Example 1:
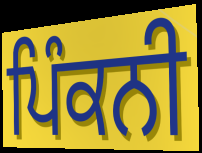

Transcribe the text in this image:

ਪਿੰਕਨੀ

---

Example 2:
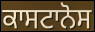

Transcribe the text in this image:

ਕਾਸਟਾਨੋਸ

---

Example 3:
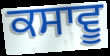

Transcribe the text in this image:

ਕਸਾਵੂ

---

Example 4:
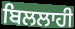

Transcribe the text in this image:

ਬਿਲਲਾਹੀ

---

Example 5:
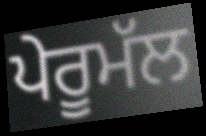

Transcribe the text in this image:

ਪੇਰੂਮੱਲ